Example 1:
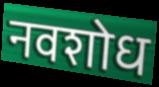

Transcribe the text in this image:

नवशोध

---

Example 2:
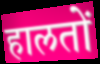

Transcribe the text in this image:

हालतों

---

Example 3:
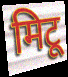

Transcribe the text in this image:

मिटू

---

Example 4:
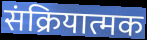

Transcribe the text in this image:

संक्रियात्मक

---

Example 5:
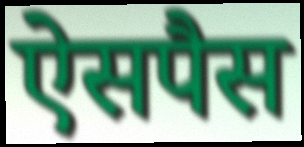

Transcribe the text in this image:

ऐसपैस